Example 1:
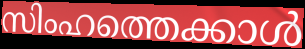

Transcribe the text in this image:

സിംഹത്തെക്കാൾ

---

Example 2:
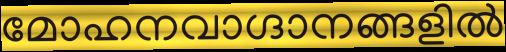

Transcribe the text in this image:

മോഹനവാഗ്ദാനങ്ങളിൽ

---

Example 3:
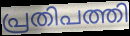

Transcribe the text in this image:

പ്രതിപത്തി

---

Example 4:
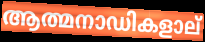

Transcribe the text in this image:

ആത്മനാഡികളാല്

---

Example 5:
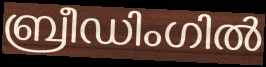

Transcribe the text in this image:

ബ്രീഡിംഗിൽ